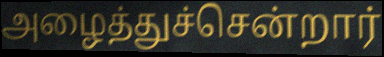
அழைத்துச்சென்றார்